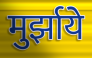
मुर्झाये